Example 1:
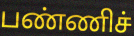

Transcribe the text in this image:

பண்ணிச்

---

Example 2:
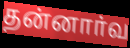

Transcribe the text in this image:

தன்னார்வ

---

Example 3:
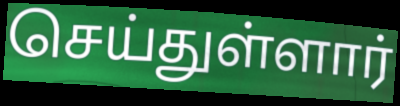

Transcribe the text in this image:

செய்துள்ளார்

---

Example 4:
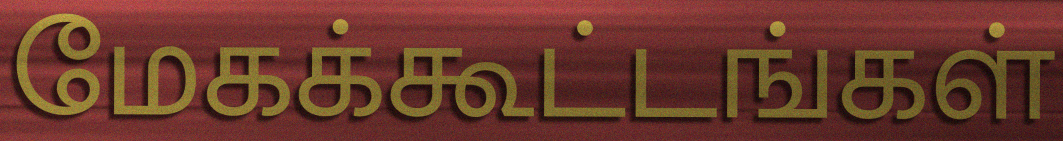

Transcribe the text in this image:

மேகக்கூட்டங்கள்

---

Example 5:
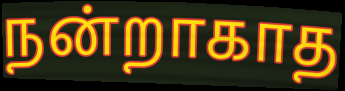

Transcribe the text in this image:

நன்றாகாத